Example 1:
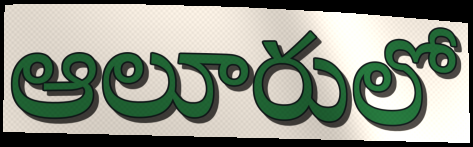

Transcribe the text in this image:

ఆలూరులో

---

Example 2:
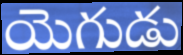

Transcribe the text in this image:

యెగుడు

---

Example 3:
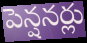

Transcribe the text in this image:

పెన్షనర్లు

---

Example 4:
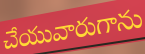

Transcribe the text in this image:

చేయువారుగాను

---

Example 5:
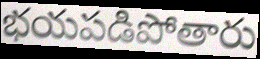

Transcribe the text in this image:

భయపడిపోతారు